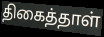
திகைத்தாள்